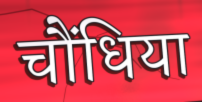
चौंधिया